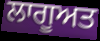
ਲਾਗੂਅਤ